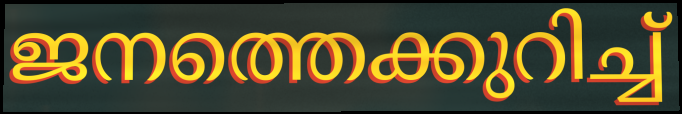
ജനത്തെക്കുറിച്ച്